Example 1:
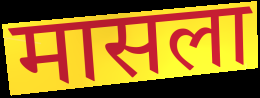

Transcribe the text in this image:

मासला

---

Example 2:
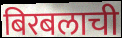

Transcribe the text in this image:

बिरबलाची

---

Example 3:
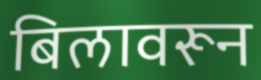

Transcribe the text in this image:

बिलावरून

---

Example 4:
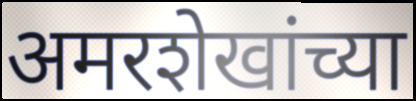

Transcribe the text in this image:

अमरशेखांच्या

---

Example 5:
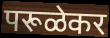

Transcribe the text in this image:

परूळेकर